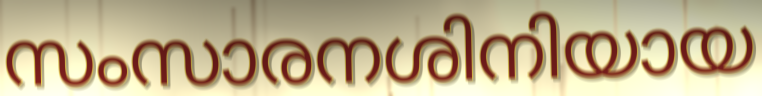
സംസാരനശിനിയായ